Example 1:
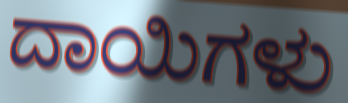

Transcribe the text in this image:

ದಾಯಿಗಳು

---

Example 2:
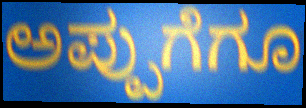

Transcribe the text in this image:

ಅಪ್ಪುಗೆಗೂ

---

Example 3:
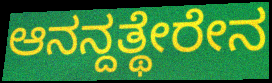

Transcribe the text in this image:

ಆನನ್ದತ್ಥೇರೇನ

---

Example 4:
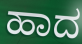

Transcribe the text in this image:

ಹಾದ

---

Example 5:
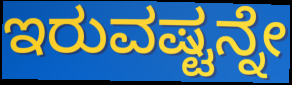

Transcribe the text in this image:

ಇರುವಷ್ಟನ್ನೇ